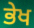
ਭੇਖ